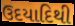
ઉદયાદિથી